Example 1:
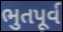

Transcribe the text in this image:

ભુતપૂર્વ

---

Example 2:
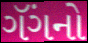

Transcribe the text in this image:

ગૅંગનો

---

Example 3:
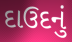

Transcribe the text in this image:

દાઉદનું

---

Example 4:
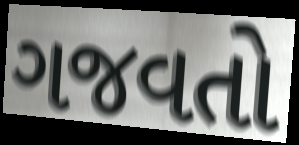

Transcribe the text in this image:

ગજવતો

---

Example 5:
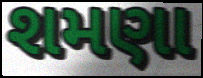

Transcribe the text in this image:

શમણા